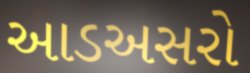
આડઅસરો